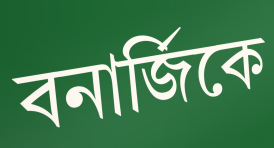
বনার্জিকে